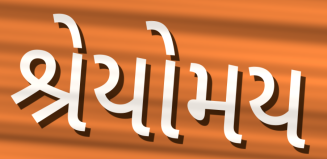
શ્રેયોમય